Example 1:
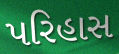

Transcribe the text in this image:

પરિહાસ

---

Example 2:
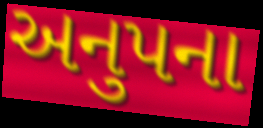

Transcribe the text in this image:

અનુપના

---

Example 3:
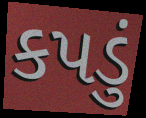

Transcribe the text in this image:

કપડું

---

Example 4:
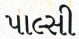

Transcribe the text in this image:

પાલ્સી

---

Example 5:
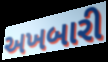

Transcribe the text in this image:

અખબારી